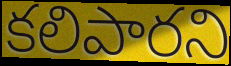
కలిపారని